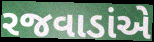
રજવાડાંએ